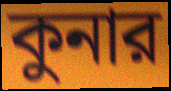
কুনার